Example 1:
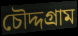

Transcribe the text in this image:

চৌদ্দগ্রাম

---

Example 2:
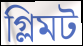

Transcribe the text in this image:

গ্লিমট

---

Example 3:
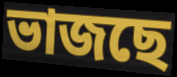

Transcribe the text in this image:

ভাজছে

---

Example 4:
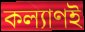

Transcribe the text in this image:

কল্যাণই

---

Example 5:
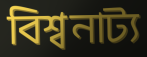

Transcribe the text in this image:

বিশ্বনাট্য